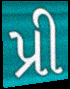
પ્રી